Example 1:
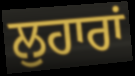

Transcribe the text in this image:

ਲੁਹਾਰਾਂ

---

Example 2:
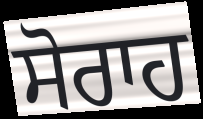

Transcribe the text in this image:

ਸੋਰਾਹ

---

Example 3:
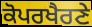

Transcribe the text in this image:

ਕੋਪਰਖੈਰਣੇ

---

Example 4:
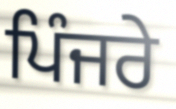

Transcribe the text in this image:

ਪਿੰਜਰੇ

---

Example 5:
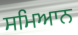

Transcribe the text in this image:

ਸਮਿਆਨ